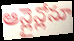
ఆన్లైన్లోనూ